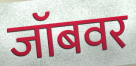
जॉबवर